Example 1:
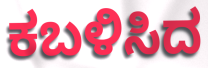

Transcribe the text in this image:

ಕಬಳಿಸಿದ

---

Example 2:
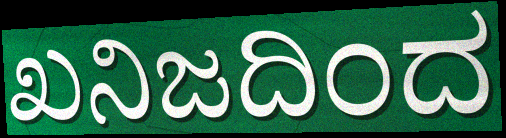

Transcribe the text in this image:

ಖನಿಜದಿಂದ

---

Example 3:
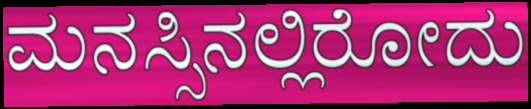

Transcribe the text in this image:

ಮನಸ್ಸಿನಲ್ಲಿರೋದು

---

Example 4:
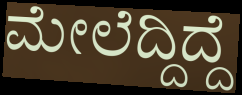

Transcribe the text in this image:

ಮೇಲೆದ್ದಿದ್ದೆ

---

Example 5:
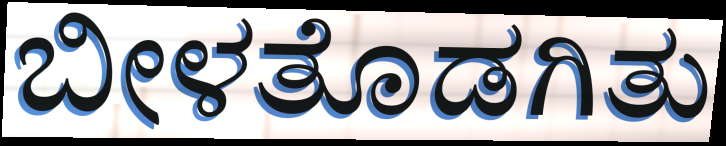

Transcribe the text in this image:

ಬೀಳತೊಡಗಿತು